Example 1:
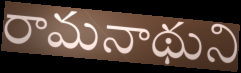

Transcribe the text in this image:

రామనాథుని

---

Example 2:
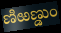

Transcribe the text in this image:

ణిఱణ్డుం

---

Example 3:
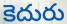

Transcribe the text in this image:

కెదురు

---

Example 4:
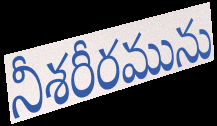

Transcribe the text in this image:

నీశరీరమును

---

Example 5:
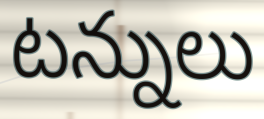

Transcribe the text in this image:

టన్నులు